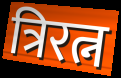
त्रिरत्न